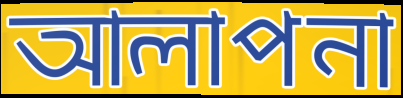
আলাপনা